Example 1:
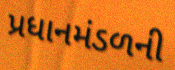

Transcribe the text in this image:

પ્રધાનમંડળની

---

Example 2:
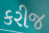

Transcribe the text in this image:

કરીજ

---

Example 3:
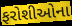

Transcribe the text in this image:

ફરોશીઓના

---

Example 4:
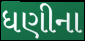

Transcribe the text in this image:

ધણીના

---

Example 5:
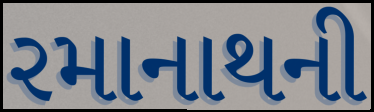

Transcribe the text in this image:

રમાનાથની